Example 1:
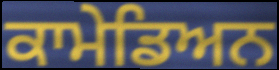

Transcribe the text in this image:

ਕਾਮੇਡਿਅਨ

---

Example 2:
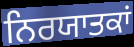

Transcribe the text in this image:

ਨਿਰਯਾਤਕਾਂ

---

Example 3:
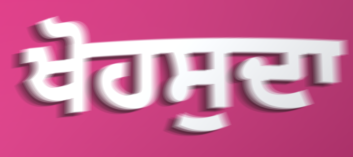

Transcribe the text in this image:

ਖੋਹਸੁਦਾ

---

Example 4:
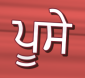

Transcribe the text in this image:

ਪੂਸੇ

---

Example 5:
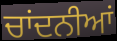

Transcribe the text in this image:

ਚਾਂਦਨੀਆਂ